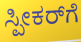
ಸ್ಪೀಕರ್‌ಗೆ